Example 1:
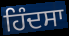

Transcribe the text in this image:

ਹਿੰਦਸਾ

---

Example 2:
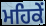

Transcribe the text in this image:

ਮਹਿਕੇਂ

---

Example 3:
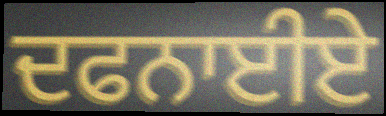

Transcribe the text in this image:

ਦਫਨਾਈਏ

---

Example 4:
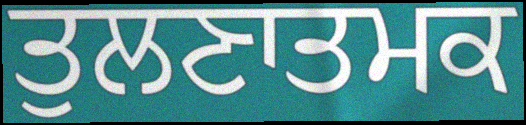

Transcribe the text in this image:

ਤੁਲਣਾਤਮਕ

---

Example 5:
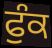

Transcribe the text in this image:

ਫੁੰਕ